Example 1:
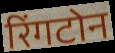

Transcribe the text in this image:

रिंगटोन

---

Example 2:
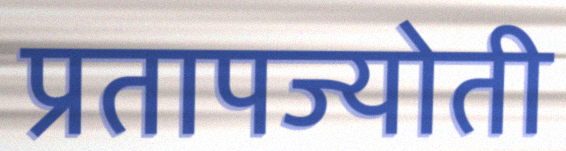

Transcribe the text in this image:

प्रतापज्योती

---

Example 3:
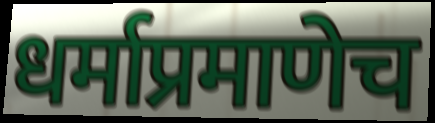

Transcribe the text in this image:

धर्माप्रमाणेच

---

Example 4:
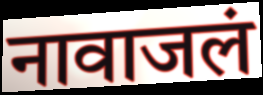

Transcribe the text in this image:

नावाजलं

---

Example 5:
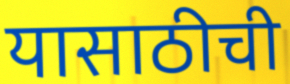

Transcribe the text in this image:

यासाठीची